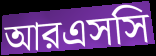
আরএসসি